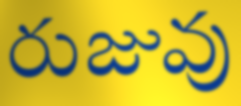
రుజువు